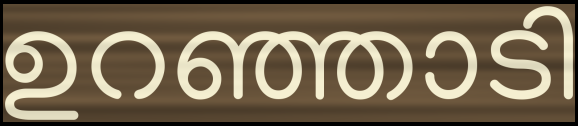
ഉറഞ്ഞാടി